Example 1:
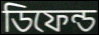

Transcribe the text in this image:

ডিফেন্ড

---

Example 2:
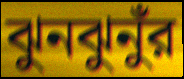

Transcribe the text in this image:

ঝুনঝুনুঁর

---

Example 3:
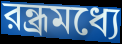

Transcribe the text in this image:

রন্ধ্রমধ্যে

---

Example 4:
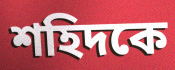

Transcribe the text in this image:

শহিদকে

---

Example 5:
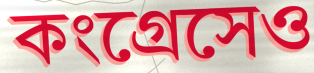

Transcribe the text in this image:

কংগ্রেসেও